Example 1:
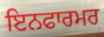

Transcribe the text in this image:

ਇਨਫਾਰਮਰ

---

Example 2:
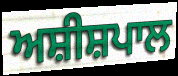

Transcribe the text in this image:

ਅਸ਼ੀਸ਼ਪਾਲ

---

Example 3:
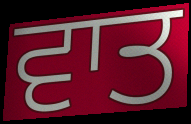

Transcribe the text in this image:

ਵਾਤ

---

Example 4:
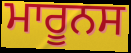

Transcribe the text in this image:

ਮਾਰੂਨਸ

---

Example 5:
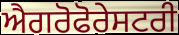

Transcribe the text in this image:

ਐਗਰੋਫੋਰੇਸਟਰੀ